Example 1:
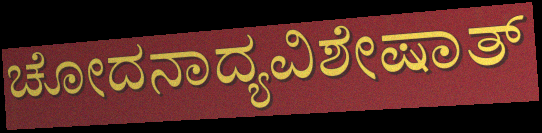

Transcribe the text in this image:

ಚೋದನಾದ್ಯವಿಶೇಷಾತ್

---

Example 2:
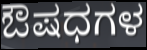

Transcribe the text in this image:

ಔಷಧಗಳ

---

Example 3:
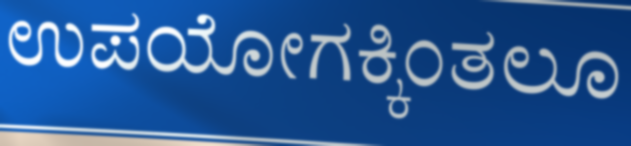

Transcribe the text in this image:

ಉಪಯೋಗಕ್ಕಿಂತಲೂ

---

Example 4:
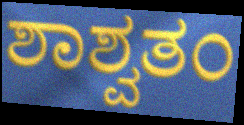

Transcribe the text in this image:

ಶಾಶ್ವತಂ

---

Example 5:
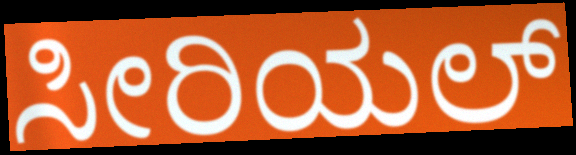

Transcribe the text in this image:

ಸೀರಿಯಲ್